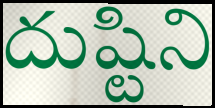
దుష్టిని